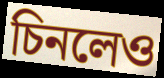
চিনলেও